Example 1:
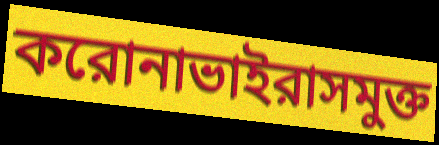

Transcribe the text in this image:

করোনাভাইরাসমুক্ত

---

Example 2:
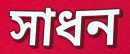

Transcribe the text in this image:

সাধন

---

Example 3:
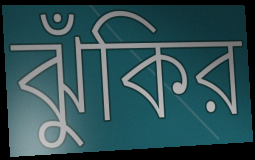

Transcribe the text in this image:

ঝুঁকির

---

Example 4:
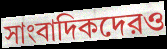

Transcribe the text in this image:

সাংবাদিকদেরও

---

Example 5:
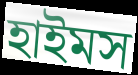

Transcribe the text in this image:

হাইমস